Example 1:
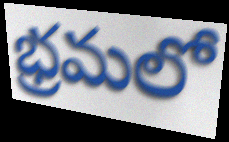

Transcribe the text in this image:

భ్రమలో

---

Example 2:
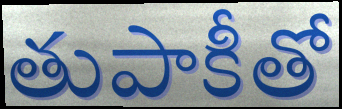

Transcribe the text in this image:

తుపాకీతో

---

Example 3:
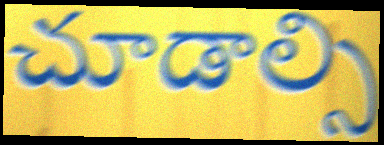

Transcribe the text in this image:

చూడాల్సి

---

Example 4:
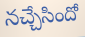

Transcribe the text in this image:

నచ్చేసిందో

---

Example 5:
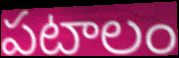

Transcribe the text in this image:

పటాలం